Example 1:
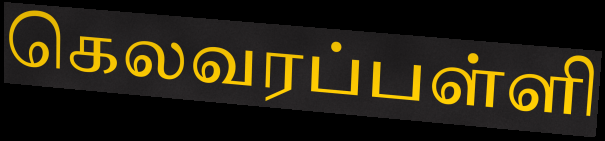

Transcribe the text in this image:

கெலவரப்பள்ளி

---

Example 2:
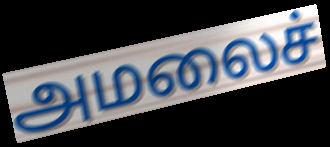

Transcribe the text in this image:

அமலைச்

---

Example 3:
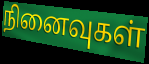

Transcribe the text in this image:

நினைவுகள்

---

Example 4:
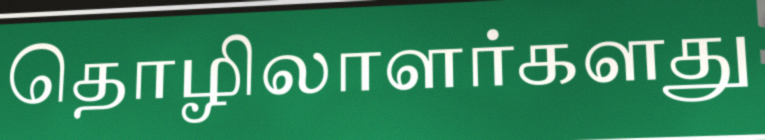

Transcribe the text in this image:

தொழிலாளர்களது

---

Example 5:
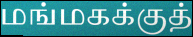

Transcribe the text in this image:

மங்மகக்குத்